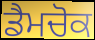
ਡੈਮਚੋਕ